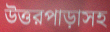
উত্তরপাড়াসহ